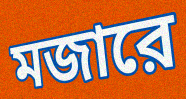
মজারে